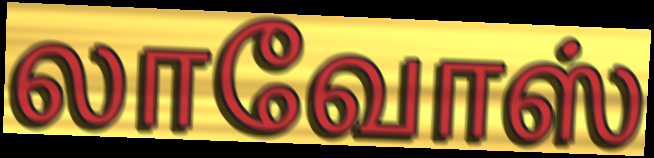
லாவோஸ்